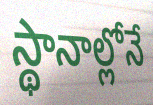
స్థానాల్లోనే